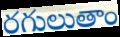
రగులుతాం